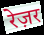
रेज़र